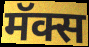
मॅक्स